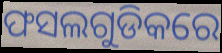
ଫସଲଗୁଡିକରେ